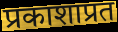
प्रकाशाप्रत